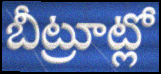
బీట్రూట్లో